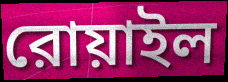
রোয়াইল